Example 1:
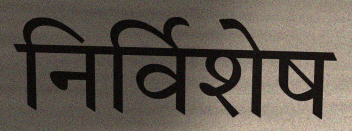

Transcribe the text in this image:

निर्विशेष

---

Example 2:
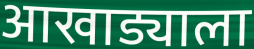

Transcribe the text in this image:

आखाड्याला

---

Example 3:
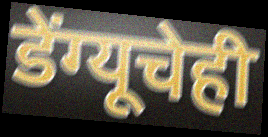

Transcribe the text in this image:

डेंग्यूचेही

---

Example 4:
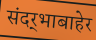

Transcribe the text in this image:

संदर्भाबाहेर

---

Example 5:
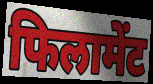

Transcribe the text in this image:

फिलामेंट